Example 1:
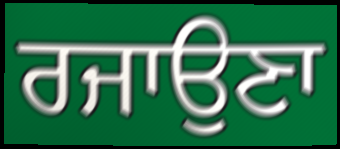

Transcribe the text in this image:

ਰਜਾਉਣਾ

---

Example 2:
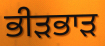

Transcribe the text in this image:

ਭੀੜਭਾੜ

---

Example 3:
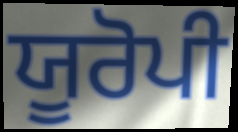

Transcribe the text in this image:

ਯੂਰੋਪੀ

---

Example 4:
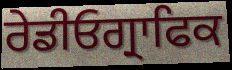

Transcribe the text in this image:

ਰੇਡੀਓਗ੍ਰਾਫਿਕ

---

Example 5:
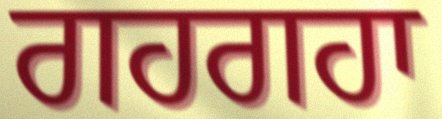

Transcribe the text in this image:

ਗਹਗਹਾ